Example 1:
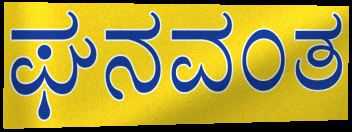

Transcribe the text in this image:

ಘನವಂತ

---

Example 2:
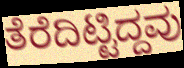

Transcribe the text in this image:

ತೆರೆದಿಟ್ಟಿದ್ದವು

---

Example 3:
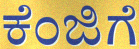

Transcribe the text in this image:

ಕೆಂಜಿಗೆ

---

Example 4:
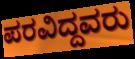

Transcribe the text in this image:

ಪರವಿದ್ದವರು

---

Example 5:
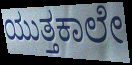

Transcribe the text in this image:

ಯುತ್ತಕಾಲೇ